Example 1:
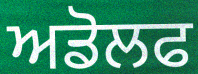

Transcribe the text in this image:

ਅਡੋਲਫ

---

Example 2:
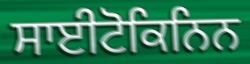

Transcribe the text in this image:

ਸਾਈਟੋਕਿਨਿਨ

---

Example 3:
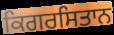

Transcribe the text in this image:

ਕਿਗਰਸਿਤਾਨ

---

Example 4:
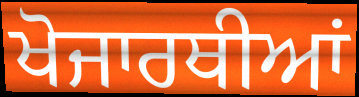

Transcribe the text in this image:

ਖੋਜਾਰਥੀਆਂ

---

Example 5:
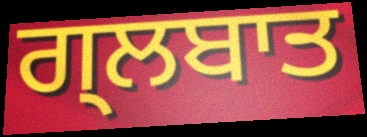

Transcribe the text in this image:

ਗ੍ਲਬਾਤ